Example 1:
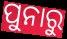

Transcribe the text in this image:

ପୁନାରୁ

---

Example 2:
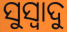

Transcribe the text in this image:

ସୁସ୍ଵାଦୁ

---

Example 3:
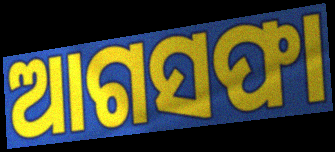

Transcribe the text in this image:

ଆଗସଫା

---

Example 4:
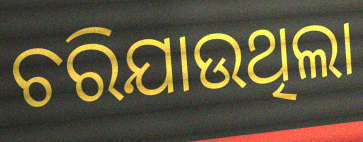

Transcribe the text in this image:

ଚରିଯାଉଥିଲା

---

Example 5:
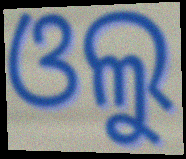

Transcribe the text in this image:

ଓଲୁ